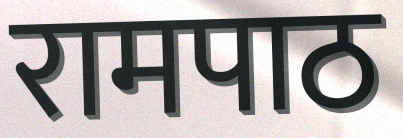
रामपाठ